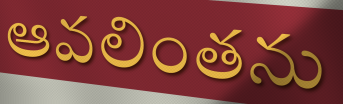
ఆవలింతను